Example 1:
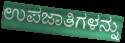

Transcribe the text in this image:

ಉಪಜಾತಿಗಳನ್ನು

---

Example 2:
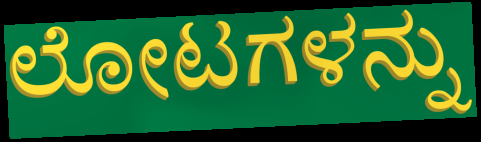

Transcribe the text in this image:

ಲೋಟಗಳನ್ನು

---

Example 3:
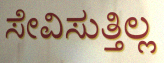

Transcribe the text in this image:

ಸೇವಿಸುತ್ತಿಲ್ಲ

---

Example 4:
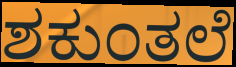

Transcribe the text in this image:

ಶಕುಂತಲೆ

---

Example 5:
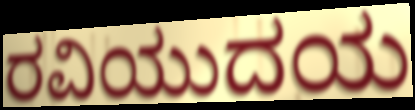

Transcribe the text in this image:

ರವಿಯುದಯ